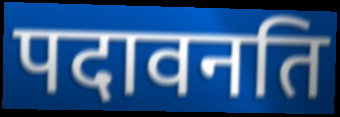
पदावनति